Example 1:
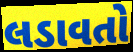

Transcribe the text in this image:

લડાવતો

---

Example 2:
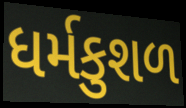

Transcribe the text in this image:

ધર્મકુશળ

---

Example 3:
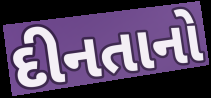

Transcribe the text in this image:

દીનતાનો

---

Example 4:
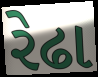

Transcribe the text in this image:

રેઢા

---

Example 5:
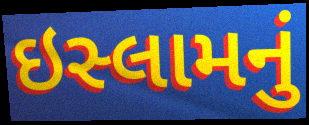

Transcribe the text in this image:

ઇસ્લામનું